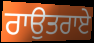
ਰਾਉਤਰਾਏ